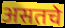
असतचे